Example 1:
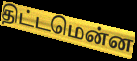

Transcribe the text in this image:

திட்டமென்ன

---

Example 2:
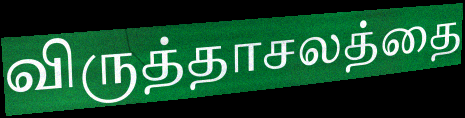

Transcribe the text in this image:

விருத்தாசலத்தை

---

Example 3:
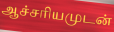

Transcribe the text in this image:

ஆச்சரியமுடன்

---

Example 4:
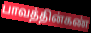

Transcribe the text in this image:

பாவத்தின்கண்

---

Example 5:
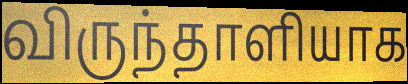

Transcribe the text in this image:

விருந்தாளியாக